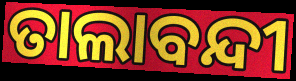
ତାଲାବନ୍ଦୀ